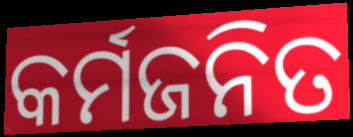
କର୍ମଜନିତ